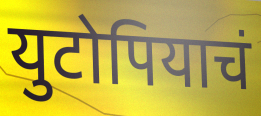
युटोपियाचं